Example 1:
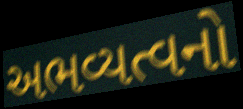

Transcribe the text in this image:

અભવ્યત્વનો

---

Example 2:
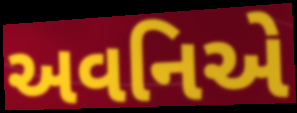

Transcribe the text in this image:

અવનિએ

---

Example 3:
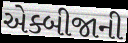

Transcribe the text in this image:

એક્બીજાની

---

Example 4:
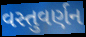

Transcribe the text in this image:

વસ્તુવર્ણન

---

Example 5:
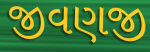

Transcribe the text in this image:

જીવણજી